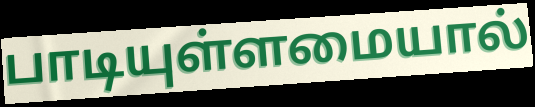
பாடியுள்ளமையால்